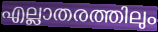
എല്ലാതരത്തിലും